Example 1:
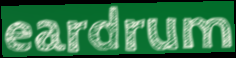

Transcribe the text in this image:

eardrum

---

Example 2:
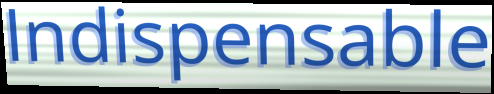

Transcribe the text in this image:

Indispensable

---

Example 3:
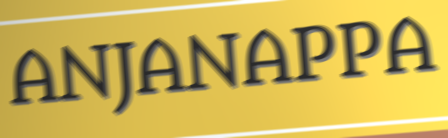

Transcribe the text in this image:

ANJANAPPA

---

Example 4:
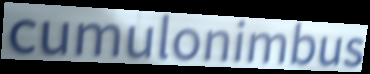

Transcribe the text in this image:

cumulonimbus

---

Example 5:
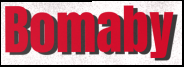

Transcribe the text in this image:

Bomaby